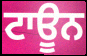
ਟਾਊਨ